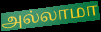
அல்லாமா